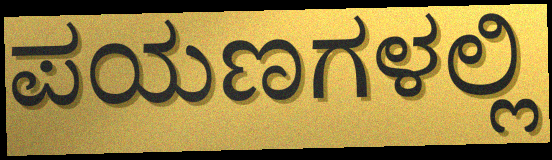
ಪಯಣಗಳಲ್ಲಿ